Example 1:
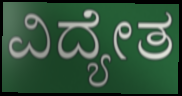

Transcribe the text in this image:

ವಿದ್ಯೇತ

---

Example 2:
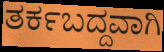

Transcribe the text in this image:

ತರ್ಕಬದ್ದವಾಗಿ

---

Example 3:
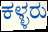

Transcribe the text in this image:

ಕಳ್ಳರು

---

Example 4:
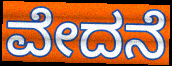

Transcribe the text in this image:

ವೇದನೆ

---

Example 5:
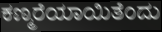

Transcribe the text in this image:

ಕಣ್ಮರೆಯಾಯಿತೆಂದು